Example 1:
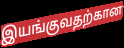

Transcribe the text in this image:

இயங்குவதற்கான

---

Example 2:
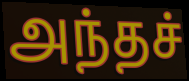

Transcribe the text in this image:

அந்தச்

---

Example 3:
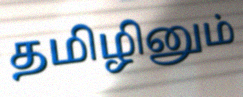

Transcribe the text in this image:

தமிழினும்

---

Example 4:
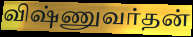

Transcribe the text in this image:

விஷ்ணுவர்தன்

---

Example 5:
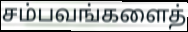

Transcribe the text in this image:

சம்பவங்களைத்